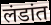
लंडांत